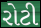
રોટી